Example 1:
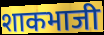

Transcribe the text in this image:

शाकभाजी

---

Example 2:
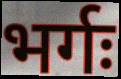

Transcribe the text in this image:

भर्गः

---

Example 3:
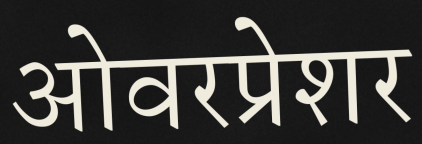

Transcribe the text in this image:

ओवरप्रेशर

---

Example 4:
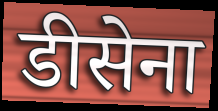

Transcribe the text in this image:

डीसेना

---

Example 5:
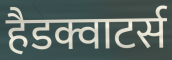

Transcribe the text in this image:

हैडक्वाटर्स